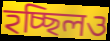
হচ্ছিলও